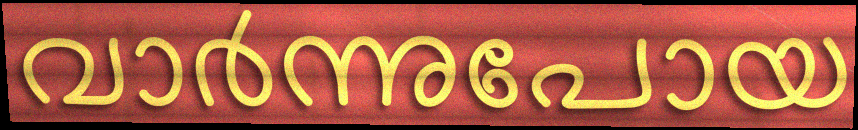
വാർന്നുപോയ